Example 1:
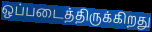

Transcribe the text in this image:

ஒப்படைத்திருக்கிறது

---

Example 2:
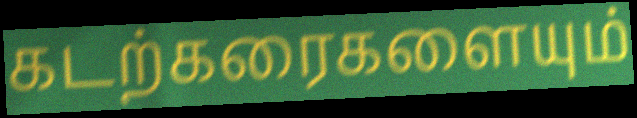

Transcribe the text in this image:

கடற்கரைகளையும்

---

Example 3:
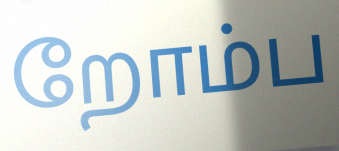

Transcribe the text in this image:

றோம்ப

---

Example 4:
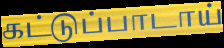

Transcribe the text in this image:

கட்டுப்பாடாய்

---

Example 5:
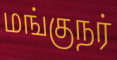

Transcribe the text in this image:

மங்குநர்